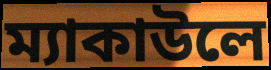
ম্যাকাউলে